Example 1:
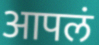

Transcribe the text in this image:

आपलं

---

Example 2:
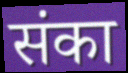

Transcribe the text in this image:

संका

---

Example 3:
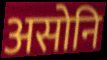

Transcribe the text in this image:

असोनि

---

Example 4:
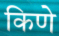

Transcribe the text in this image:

किणे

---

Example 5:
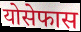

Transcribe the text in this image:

योसेफास